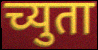
च्युता